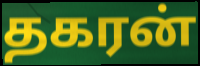
தகரன்